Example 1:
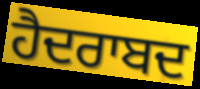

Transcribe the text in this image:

ਹੈਦਰਾਬਦ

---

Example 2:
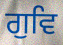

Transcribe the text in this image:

ਗੁਵਿ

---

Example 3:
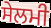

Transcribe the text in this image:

ਸੇਲਮੀ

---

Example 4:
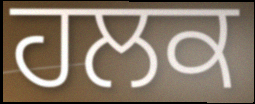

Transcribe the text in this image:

ਹਲਕ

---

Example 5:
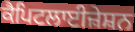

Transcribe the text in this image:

ਕੈਪਿਟਲਾਈਜ਼ੇਸ਼ਨ